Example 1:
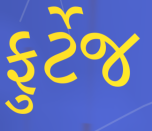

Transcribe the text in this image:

ફુર્ટેજ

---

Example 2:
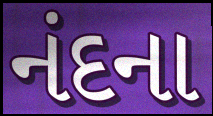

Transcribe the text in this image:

નંદના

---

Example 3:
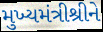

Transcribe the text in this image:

મુખ્યમંત્રીશ્રીને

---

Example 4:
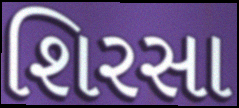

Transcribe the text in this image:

શિરસા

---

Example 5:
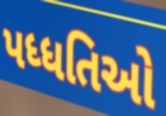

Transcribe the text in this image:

પધ્ધતિઓ